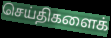
செய்திகளைக்